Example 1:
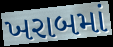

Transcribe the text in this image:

ખરાબમાં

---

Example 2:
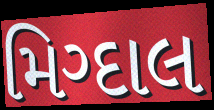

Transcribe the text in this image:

મિગ્દાલ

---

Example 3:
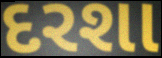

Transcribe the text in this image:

દરશા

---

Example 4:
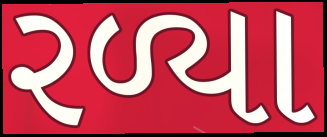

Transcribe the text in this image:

રળ્યા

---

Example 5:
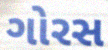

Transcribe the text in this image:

ગોરસ